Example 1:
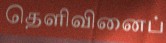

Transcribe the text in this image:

தெளிவினைப்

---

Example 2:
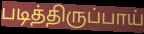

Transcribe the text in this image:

படித்திருப்பாய்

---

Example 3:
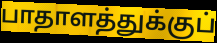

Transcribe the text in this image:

பாதாளத்துக்குப்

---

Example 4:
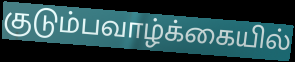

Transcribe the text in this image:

குடும்பவாழ்க்கையில்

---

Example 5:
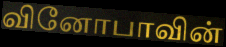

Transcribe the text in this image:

வினோபாவின்